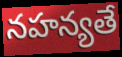
నహన్యతే